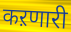
कऱणारी